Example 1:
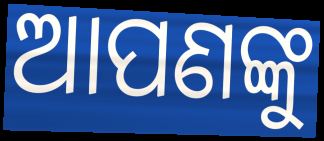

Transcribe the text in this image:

ଆପଣଙ୍କୁ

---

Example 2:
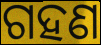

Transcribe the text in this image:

ଗହଣ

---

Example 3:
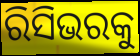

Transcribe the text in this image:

ରିସିଭରକୁ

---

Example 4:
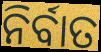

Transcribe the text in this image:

ନିର୍ବାତ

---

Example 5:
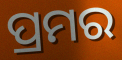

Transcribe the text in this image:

ପ୍ରମର